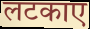
लटकाए